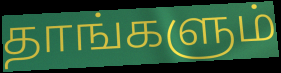
தாங்களும்